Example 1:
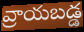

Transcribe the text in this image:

వ్రాయబడ్డ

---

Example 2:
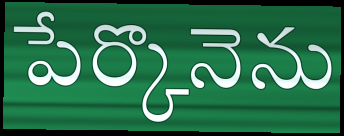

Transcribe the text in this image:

పేర్కొనెను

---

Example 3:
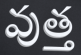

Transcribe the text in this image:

వుత్త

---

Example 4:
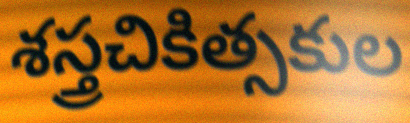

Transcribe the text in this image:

శస్త్రచికిత్సకుల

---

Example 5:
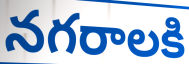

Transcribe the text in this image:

నగరాలకి